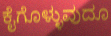
ಕೈಗೊಳ್ಳುವುದೂ